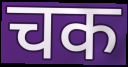
चक